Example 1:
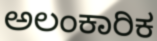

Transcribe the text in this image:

ಅಲಂಕಾರಿಕ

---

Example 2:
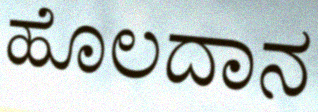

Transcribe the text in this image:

ಹೊಲದಾನ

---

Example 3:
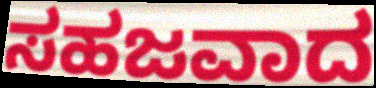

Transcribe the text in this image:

ಸಹಜವಾದ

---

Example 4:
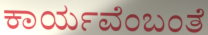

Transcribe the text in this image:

ಕಾರ್ಯವೆಂಬಂತೆ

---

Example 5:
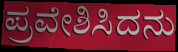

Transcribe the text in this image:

ಪ್ರವೇಶಿಸಿದನು